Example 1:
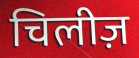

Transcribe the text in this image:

चिलीज़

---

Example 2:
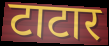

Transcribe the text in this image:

टाटार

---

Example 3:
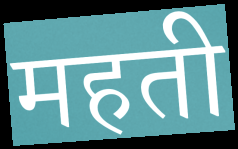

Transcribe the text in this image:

महती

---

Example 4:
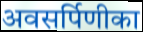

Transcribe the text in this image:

अवसर्पिणीका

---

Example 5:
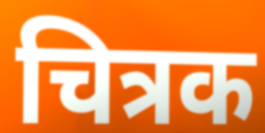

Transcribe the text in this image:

चित्रक